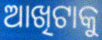
ଆଖିଟାକୁ